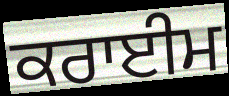
ਕਰਾਈਮ